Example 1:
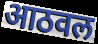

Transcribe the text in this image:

आठवल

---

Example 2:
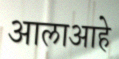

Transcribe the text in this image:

आलाआहे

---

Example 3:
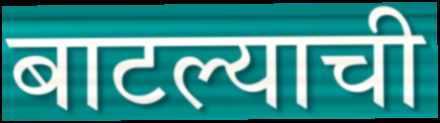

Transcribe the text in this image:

बाटल्याची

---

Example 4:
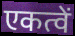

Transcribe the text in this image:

एकत्वें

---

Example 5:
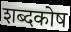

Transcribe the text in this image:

शब्दकोष